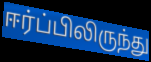
ஈர்ப்பிலிருந்து